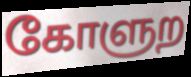
கோளுற